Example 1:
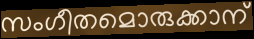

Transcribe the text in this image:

സംഗീതമൊരുക്കാന്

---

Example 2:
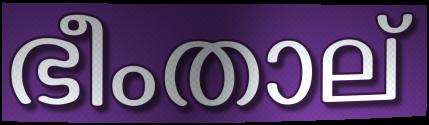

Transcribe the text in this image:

ഭീംതാല്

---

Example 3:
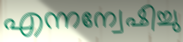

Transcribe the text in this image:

എന്നന്വേഷിച്ചു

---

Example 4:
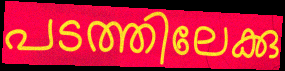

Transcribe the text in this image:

പടത്തിലേക്കു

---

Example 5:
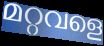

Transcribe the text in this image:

മറ്റവളെ